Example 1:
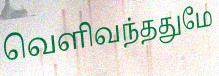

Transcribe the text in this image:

வெளிவந்ததுமே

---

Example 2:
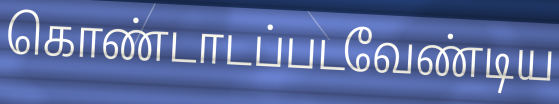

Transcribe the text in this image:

கொண்டாடப்படவேண்டிய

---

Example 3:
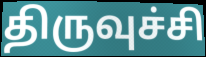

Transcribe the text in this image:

திருவுச்சி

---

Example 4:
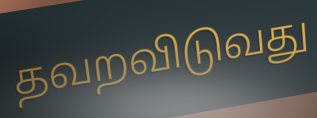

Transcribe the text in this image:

தவறவிடுவது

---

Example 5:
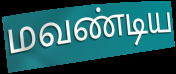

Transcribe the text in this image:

மவண்டிய